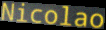
Nicolao